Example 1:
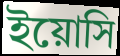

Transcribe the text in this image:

ইয়োসি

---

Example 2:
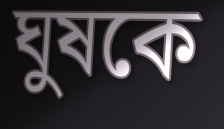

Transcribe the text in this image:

ঘুষকে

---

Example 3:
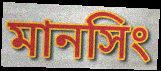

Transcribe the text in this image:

মানসিং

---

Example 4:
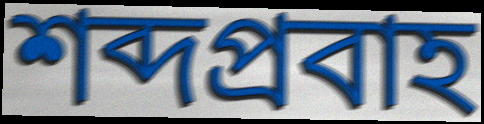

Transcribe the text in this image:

শব্দপ্রবাহ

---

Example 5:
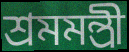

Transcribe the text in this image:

শ্রমমন্ত্রী